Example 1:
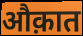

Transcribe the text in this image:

औक़ात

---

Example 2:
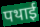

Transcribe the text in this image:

पथाई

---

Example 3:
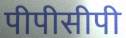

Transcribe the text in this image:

पीपीसीपी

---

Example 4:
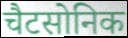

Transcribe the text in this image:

चैटसोनिक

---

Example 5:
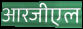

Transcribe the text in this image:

आरजीएल